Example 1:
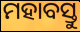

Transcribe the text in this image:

ମହାବସ୍ତୁ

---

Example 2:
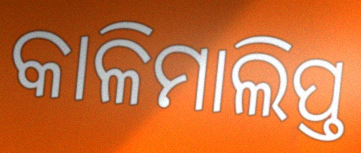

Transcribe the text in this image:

କାଳିମାଲିପ୍ତ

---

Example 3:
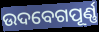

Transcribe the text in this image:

ଉଦବେଗପୂର୍ଣ୍ଣ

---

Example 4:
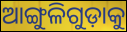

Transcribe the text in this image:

ଆଙ୍ଗୁଳିଗୁଡ଼ାକୁ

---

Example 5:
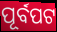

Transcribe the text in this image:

ପୂର୍ବପଟ